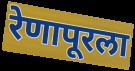
रेणापूरला